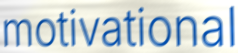
motivational